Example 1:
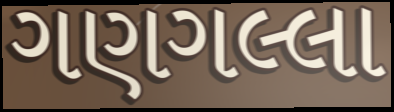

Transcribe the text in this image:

ગણગલ્લા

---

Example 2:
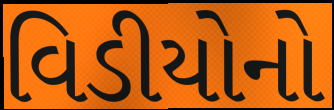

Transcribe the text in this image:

વિડીયોનો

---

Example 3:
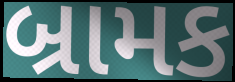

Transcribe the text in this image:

બ્રામક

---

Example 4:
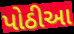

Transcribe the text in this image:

પોઠીઆ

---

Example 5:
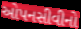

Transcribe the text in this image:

ઓપનસીવીનો